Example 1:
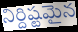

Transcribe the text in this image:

నిర్దిష్టమైన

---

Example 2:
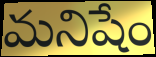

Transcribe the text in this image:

మనిషేం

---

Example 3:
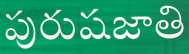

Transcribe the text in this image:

పురుషజాతి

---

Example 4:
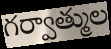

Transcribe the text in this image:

గర్వాత్ముల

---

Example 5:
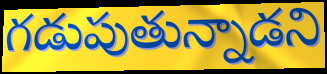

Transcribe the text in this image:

గడుపుతున్నాడని